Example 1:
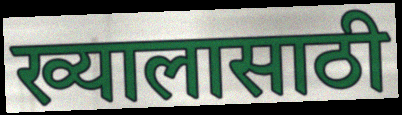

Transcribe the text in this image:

ख्यालासाठी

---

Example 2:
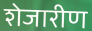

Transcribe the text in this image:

शेजारीण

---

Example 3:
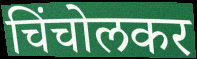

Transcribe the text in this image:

चिंचोलकर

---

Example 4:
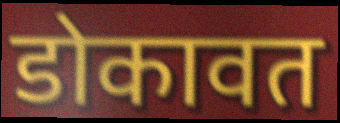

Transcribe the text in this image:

डोकावत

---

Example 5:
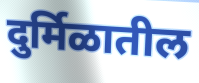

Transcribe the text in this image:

दुर्मिळातील